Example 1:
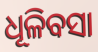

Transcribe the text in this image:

ଧୂଳିବସା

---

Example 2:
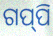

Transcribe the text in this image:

ଗପ୍‌ପି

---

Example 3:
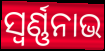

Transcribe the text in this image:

ସ୍ବର୍ଣ୍ଣନାଭ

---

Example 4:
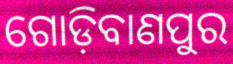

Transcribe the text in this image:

ଗୋଡ଼ିବାଣପୁର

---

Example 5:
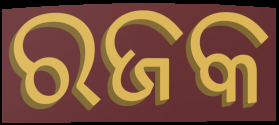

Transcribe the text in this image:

ରଜକ